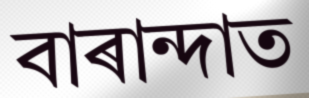
বাৰান্দাত